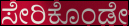
ಸೇರಿಕೊಂಡೇ